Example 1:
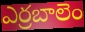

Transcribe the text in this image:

ఎర్రబాలెం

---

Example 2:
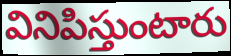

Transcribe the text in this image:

వినిపిస్తుంటారు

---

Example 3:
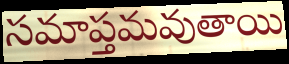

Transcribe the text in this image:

సమాప్తమవుతాయి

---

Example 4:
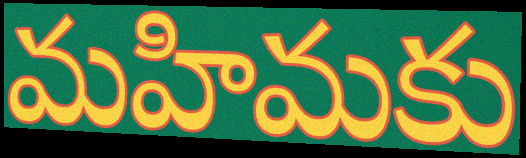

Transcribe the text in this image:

మహిమకు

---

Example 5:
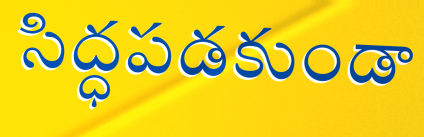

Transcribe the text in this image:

సిద్ధపడకుండా